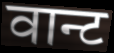
वान्ट